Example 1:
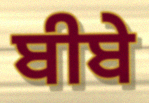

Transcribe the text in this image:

ਬੀਬੇ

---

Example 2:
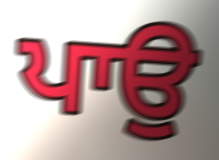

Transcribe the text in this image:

ਪਾਉ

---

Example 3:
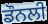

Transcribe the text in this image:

ਡੌਨਲੀ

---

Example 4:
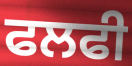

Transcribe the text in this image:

ਫਲਫੀ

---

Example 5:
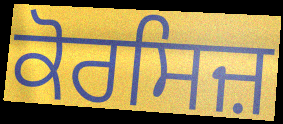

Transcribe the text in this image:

ਕੋਰਸਿਜ਼